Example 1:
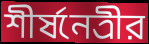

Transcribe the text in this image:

শীর্ষনেত্রীর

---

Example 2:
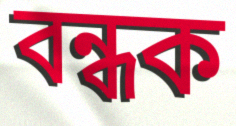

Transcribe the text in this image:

বন্ধক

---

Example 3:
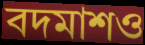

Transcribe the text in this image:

বদমাশও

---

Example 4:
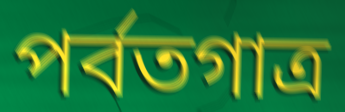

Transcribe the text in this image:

পর্বতগাত্র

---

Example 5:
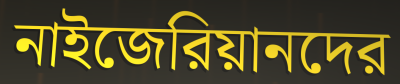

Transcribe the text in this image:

নাইজেরিয়ানদের